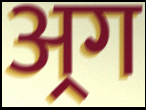
अ्रग